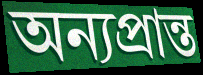
অন্যপ্রান্ত